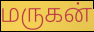
மருகன்